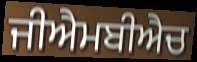
ਜੀਐਮਬੀਐਚ